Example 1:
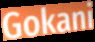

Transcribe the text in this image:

Gokani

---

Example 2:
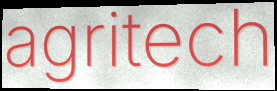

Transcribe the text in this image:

agritech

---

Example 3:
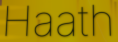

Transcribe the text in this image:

Haath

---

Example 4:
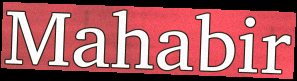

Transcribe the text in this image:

Mahabir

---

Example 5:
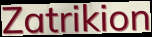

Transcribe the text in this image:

Zatrikion